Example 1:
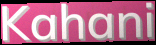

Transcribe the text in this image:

Kahani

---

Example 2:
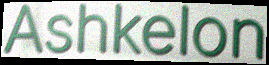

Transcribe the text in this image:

Ashkelon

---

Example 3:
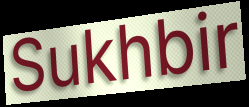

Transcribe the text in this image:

Sukhbir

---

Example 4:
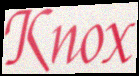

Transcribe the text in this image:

Knox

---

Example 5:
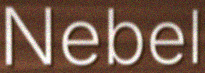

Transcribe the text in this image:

Nebel